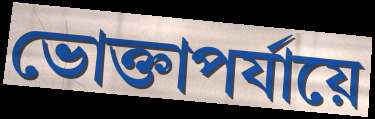
ভোক্তাপর্যায়ে